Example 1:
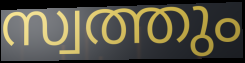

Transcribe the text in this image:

സ്വത്തും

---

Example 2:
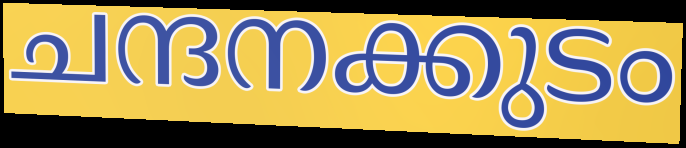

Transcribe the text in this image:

ചന്ദനക്കുടം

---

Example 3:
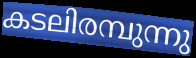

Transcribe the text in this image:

കടലിരമ്പുന്നു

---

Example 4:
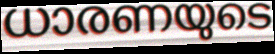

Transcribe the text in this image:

ധാരണയുടെ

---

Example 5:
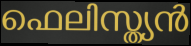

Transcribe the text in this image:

ഫെലിസ്ത്യൻ